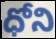
ధోని